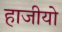
हाजीयो